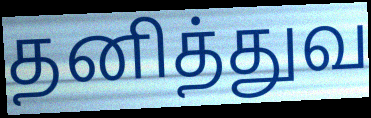
தனித்துவ